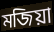
মজিয়া